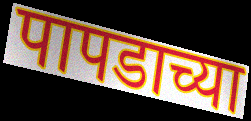
पापडाच्या